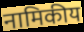
नामिकीय